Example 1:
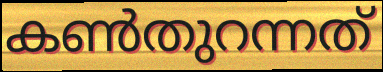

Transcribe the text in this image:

കൺതുറന്നത്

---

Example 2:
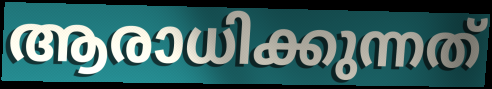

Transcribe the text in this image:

ആരാധിക്കുന്നത്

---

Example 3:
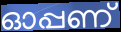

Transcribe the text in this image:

ഓപ്പണ്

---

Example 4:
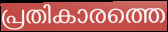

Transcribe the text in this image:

പ്രതികാരത്തെ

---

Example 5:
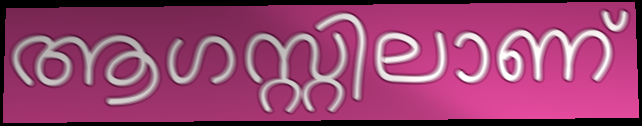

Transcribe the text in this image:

ആഗസ്റ്റിലാണ്